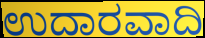
ಉದಾರವಾದಿ